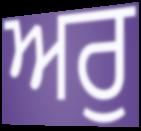
ਅਰੁ